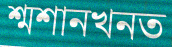
শ্মশানখনত